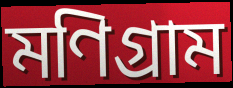
মণিগ্রাম